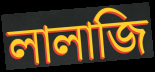
লালাজি